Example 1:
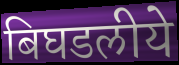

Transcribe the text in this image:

बिघडलीये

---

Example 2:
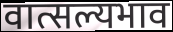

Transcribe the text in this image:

वात्सल्यभाव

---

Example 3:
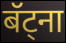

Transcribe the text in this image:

बॅट्ना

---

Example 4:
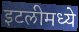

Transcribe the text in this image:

इटलीमध्ये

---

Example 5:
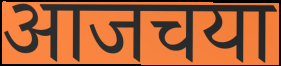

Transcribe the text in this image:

आजचया